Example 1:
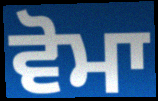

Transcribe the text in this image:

ਵੋਮਾ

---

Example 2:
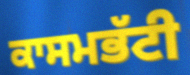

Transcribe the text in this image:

ਕਾਸਮਭੱਟੀ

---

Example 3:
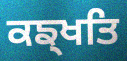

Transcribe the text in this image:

ਕਙ੍ਖਤਿ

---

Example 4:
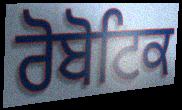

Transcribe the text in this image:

ਰੋਬੋਟਿਕ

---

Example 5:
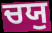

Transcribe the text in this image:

ਚਯੁ